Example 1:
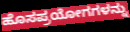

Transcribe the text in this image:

ಹೊಸಪ್ರಯೋಗಗಳನ್ನು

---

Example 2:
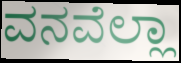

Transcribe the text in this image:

ವನವೆಲ್ಲಾ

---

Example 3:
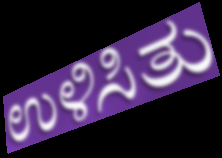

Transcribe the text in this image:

ಉಳಿಸಿತು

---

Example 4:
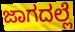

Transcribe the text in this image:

ಜಾಗದಲ್ಲೆ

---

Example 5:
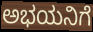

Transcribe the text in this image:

ಅಭಯನಿಗೆ